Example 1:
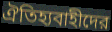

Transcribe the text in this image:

ঐতিহ্যবাহীদের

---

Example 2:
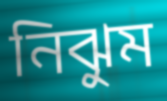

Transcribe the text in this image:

নিঝুম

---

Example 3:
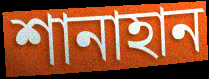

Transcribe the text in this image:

শানাহান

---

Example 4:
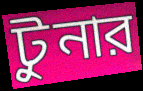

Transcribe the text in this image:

টুনার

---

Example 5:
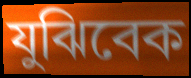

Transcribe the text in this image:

যুঝিবেক